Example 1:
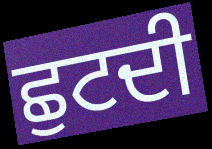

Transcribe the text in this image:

ਛੁਟਦੀ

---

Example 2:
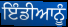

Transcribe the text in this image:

ਇੰਡੀਆਨੂੰ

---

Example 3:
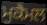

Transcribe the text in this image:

ਮੁਕੈਮਲ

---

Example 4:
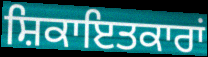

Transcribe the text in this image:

ਸ਼ਿਕਾਇਤਕਾਰਾਂ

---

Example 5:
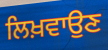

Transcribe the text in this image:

ਲਿਖ਼ਵਾਉਣ